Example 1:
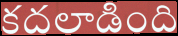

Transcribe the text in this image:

కదలాడింది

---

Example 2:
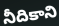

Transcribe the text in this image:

నీదికాని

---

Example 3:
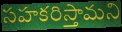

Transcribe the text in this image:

సహకరిస్తామని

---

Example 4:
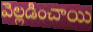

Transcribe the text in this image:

వెల్లడించాయి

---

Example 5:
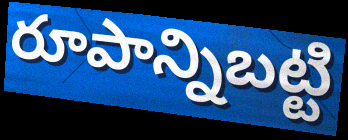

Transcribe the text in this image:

రూపాన్నిబట్టి